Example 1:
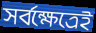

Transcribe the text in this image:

সর্বক্ষেত্রেই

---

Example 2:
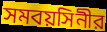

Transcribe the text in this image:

সমবয়সিনীর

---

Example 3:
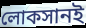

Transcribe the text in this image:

লোকসানই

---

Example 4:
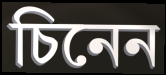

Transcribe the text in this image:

চিনেন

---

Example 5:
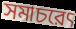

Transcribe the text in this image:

সমাচরেৎ